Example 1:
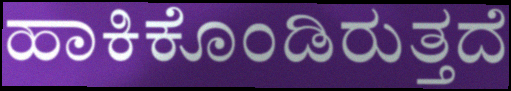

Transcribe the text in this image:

ಹಾಕಿಕೊಂಡಿರುತ್ತದೆ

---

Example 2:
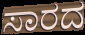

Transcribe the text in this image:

ಸಾರದ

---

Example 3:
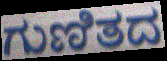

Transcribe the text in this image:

ಗುಣಿತದ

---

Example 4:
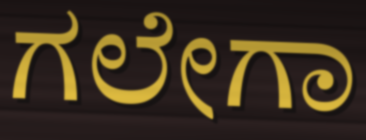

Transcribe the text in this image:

ಗಲೇಗಾ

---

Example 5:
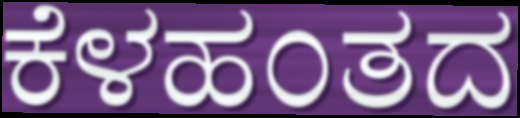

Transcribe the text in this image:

ಕೆಳಹಂತದ